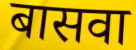
बासवा